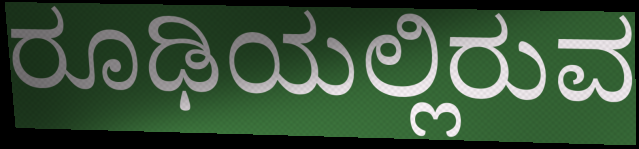
ರೂಢಿಯಲ್ಲಿರುವ